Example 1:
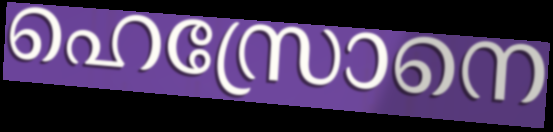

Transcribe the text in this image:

ഹെസ്രോനെ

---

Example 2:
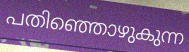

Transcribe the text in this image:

പതിഞ്ഞൊഴുകുന്ന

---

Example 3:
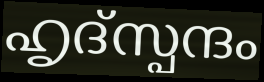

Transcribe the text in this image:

ഹൃദ്സ്പന്ദം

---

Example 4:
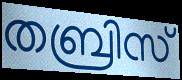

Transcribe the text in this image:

തബ്രിസ്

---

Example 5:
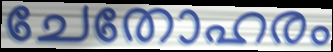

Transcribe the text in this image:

ചേതോഹരം